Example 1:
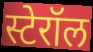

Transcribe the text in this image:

स्टेरॉल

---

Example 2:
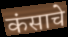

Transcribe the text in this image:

कंसाचे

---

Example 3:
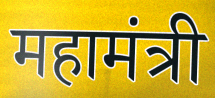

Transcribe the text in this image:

महामंत्री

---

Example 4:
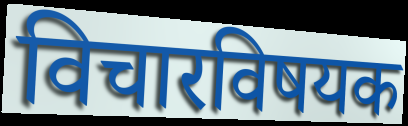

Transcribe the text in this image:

विचारविषयक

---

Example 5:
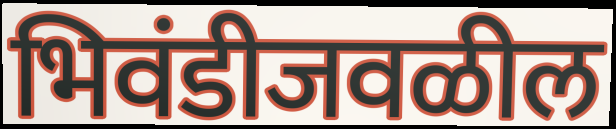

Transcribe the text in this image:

भिवंडीजवळील